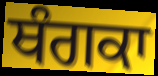
ਥੰਗਕਾ